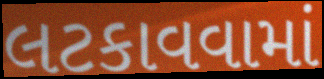
લટકાવવામાં